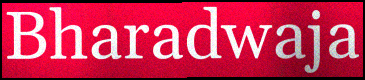
Bharadwaja